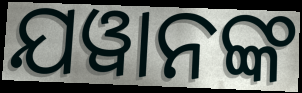
ଯୱାନଙ୍କ